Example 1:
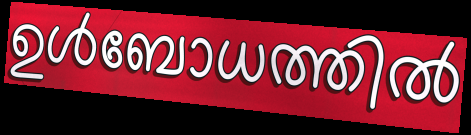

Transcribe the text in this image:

ഉൾബോധത്തിൽ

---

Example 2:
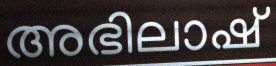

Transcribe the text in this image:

അഭിലാഷ്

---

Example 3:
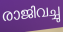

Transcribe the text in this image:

രാജിവച്ചു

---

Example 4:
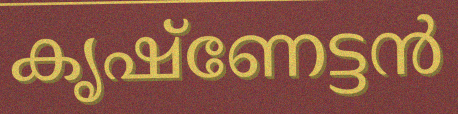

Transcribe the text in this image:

കൃഷ്ണേട്ടൻ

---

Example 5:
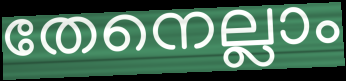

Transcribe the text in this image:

തേനെല്ലാം